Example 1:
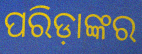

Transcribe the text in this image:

ପରିଡ଼ାଙ୍କର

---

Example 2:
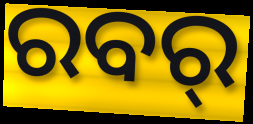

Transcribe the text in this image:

ରବର୍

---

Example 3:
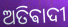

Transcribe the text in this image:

ଅତିଵାଦୀ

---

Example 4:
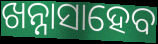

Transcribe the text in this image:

ଖନ୍ନାସାହେବ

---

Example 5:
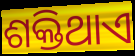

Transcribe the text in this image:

ଶକ୍ତିଥାଏ